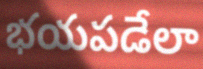
భయపడేలా